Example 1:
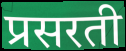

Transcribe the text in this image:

प्रसरती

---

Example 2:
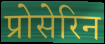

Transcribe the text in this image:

प्रोसेरिन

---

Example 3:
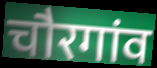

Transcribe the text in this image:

चौरगांव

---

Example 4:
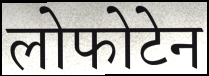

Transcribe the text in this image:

लोफोटेन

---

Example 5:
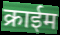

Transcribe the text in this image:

क्राईम